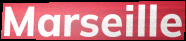
Marseille